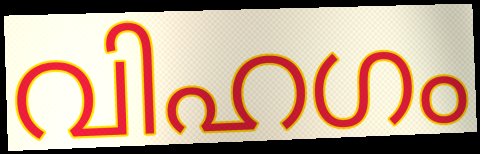
വിഹഗം